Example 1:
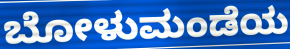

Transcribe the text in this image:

ಬೋಳುಮಂಡೆಯ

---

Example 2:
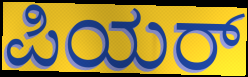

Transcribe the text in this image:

ಪಿಯರ್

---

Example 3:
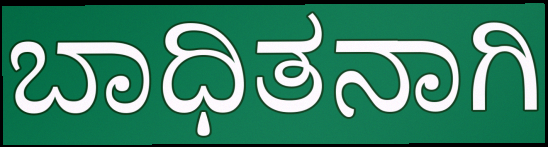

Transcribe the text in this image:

ಬಾಧಿತನಾಗಿ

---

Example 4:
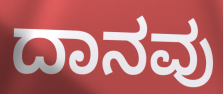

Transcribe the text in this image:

ದಾನವು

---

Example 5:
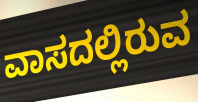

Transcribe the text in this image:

ವಾಸದಲ್ಲಿರುವ